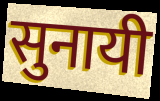
सुनायी